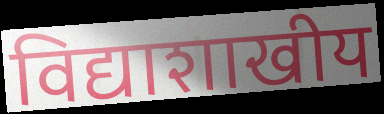
विद्याशाखीय